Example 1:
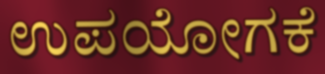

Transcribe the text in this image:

ಉಪಯೋಗಕೆ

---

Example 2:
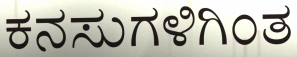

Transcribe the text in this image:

ಕನಸುಗಳಿಗಿಂತ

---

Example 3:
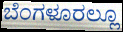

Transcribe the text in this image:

ಬೆಂಗಳೂರಲ್ಲೂ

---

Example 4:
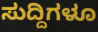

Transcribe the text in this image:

ಸುದ್ದಿಗಳೂ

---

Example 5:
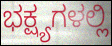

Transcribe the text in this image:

ಭಕ್ಷ್ಯಗಳಲ್ಲಿ